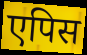
एपिस